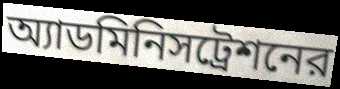
অ্যাডমিনিসট্রেশনের